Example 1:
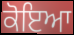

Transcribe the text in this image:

ਕੋਇਆ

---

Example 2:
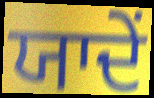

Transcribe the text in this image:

ਯਾਦੇਂ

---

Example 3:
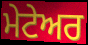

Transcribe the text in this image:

ਮੇਟੇਅਰ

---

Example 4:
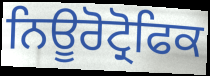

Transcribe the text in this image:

ਨਿਊਰੋਟ੍ਰੋਫਿਕ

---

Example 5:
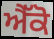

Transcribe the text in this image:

ਐੱਕੋ